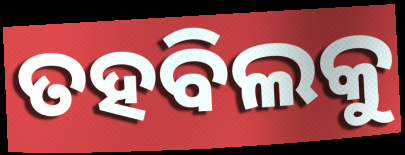
ତହବିଲକୁ